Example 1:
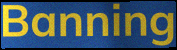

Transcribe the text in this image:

Banning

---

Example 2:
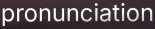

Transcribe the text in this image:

pronunciation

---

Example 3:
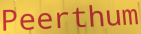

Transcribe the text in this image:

Peerthum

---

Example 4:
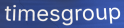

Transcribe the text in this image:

timesgroup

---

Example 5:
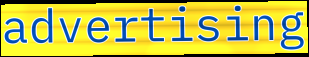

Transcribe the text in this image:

advertising